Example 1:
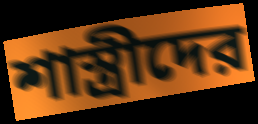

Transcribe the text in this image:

শাস্ত্রীদের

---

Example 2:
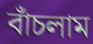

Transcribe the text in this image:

বাঁচলাম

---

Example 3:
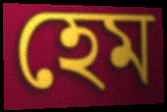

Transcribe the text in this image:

হেম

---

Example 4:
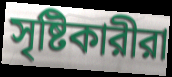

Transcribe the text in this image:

সৃষ্টিকারীরা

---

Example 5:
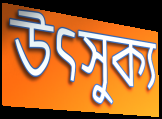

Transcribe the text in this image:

উৎসুক্য